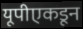
यूपीएकडून